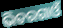
ଭିତରଗାଓଁ